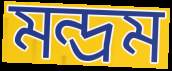
মন্দ্রম